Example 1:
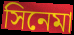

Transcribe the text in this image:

সিনেমা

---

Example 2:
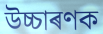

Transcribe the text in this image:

উচ্চাৰণক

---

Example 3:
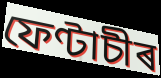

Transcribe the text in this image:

ফেণ্টাচীৰ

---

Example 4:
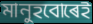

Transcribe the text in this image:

মানুহবোৰেই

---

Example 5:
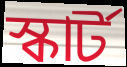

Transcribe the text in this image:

স্কাৰ্ট